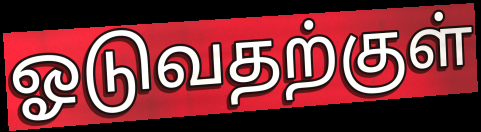
ஓடுவதற்குள்